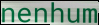
nenhum